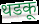
थडकू